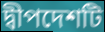
দ্বীপদেশটি